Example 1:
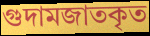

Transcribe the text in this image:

গুদামজাতকৃত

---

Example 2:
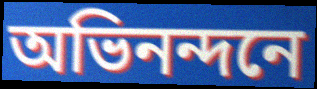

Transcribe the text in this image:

অভিনন্দনে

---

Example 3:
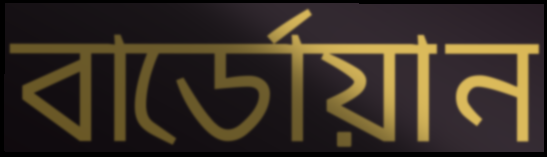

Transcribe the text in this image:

বার্ডোয়ান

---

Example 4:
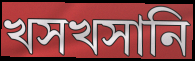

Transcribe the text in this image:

খসখসানি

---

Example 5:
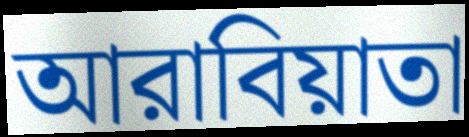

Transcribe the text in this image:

আরাবিয়াতা